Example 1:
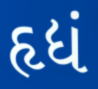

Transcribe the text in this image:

હૃદ્યં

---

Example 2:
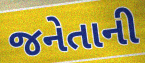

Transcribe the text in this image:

જનેતાની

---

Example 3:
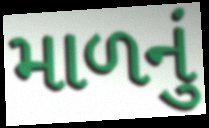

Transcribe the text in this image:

માળનું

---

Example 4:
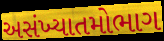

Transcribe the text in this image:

અસંખ્યાતમોભાગ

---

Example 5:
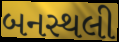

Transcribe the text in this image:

બનસ્થલી